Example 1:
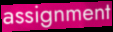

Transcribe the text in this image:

assignment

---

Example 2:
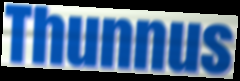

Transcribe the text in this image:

Thunnus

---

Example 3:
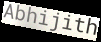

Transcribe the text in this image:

Abhijith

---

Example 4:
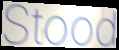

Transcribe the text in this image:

Stood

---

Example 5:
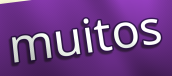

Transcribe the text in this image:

muitos